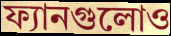
ফ্যানগুলোও